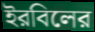
ইরবিলের